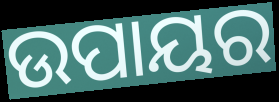
ଉପାୟର